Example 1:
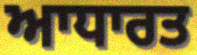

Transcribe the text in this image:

ਆਧਾਰਤ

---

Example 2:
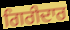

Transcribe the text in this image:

ਗਿਰੀਦਾਰ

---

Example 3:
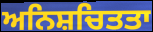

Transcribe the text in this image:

ਅਨਿਸ਼ਚਿਤਤਾ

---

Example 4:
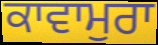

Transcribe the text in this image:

ਕਾਵਾਮੁਰਾ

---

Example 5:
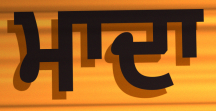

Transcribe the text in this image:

ਮਾਦਾ